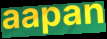
aapan